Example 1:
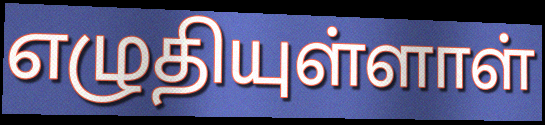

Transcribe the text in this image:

எழுதியுள்ளாள்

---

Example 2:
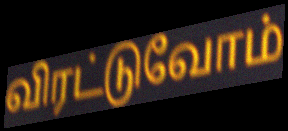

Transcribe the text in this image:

விரட்டுவோம்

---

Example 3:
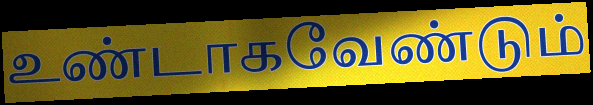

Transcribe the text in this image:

உண்டாகவேண்டும்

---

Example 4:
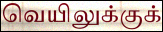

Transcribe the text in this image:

வெயிலுக்குக்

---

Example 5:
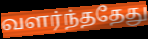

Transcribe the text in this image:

வளர்ந்ததேது